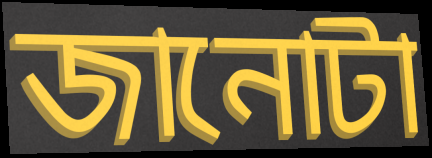
জানোটা